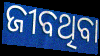
ଜୀବଥିବା